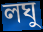
লঘু